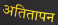
अतितापन